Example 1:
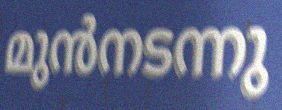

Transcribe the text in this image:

മുൻനടന്നു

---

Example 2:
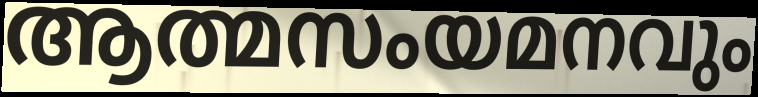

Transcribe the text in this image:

ആത്മസംയമനവും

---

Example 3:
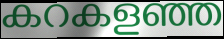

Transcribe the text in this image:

കറകളഞ്ഞ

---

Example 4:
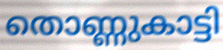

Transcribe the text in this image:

തൊണ്ണുകാട്ടി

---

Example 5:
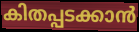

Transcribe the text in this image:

കിതപ്പടക്കാൻ